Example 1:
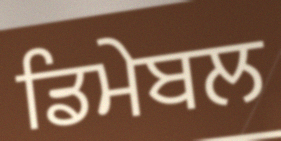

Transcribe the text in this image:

ਡਿਮੇਬਲ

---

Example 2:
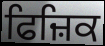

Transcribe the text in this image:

ਫਿਜ਼ਿਕ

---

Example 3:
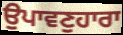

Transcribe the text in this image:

ਉਪਾਵਣੁਹਾਰਾ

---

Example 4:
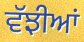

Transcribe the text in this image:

ਵੱਝੀਆਂ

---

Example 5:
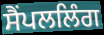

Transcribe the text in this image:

ਸੈਂਪਲਲਿੰਗ